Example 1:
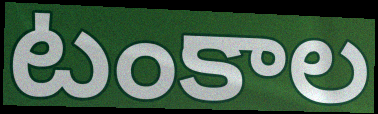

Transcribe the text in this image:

టంకాల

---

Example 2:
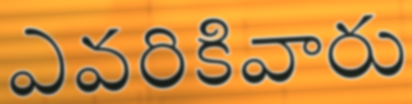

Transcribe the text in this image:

ఎవరికివారు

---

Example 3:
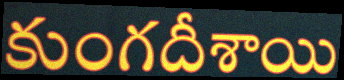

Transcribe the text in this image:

కుంగదీశాయి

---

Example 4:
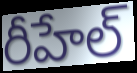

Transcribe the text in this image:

రీహేల్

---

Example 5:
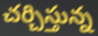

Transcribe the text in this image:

చర్చిస్తున్న